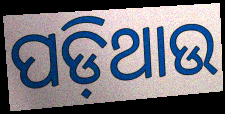
ପଡ଼ିଥାଉ